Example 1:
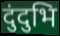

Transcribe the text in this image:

दुंदुभि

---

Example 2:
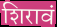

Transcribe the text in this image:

शिरावं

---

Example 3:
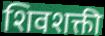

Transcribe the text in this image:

शिवशक्ती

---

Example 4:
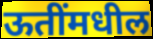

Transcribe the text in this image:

ऊतींमधील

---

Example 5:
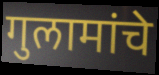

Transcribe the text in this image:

गुलामांचे